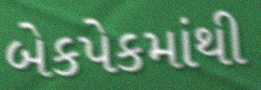
બેકપેકમાંથી